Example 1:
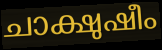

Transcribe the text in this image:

ചാക്ഷുഷീം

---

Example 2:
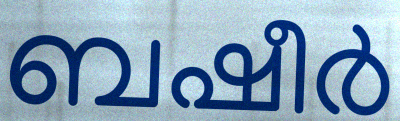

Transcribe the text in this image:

ബഷീർ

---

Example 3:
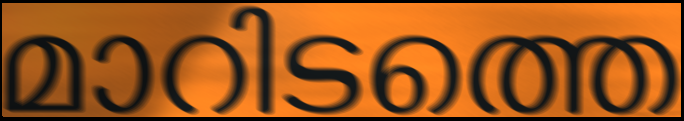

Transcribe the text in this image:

മാറിടത്തെ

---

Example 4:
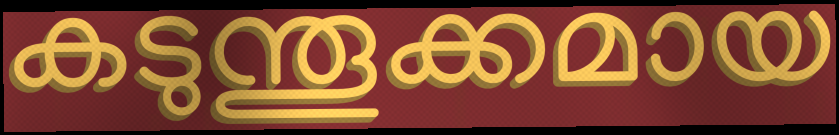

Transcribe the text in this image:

കടുന്തൂക്കമായ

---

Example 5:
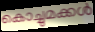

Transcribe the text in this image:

കൊച്ചുമക്കൾ